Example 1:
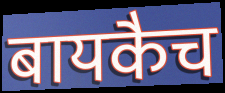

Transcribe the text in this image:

बायकैच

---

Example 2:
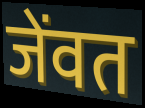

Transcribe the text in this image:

जेंवत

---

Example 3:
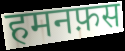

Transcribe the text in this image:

हमनफ़स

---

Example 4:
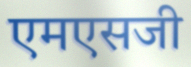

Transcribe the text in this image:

एमएसजी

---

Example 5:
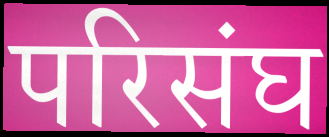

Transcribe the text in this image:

परिसंघ